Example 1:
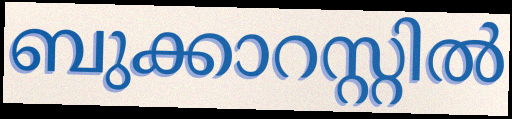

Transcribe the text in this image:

ബുക്കാറസ്റ്റിൽ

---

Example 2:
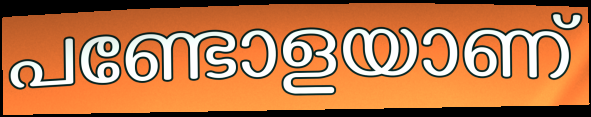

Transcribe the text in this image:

പണ്ടോളയാണ്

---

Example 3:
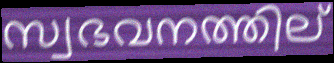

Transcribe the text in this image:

സ്വഭവനത്തില്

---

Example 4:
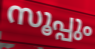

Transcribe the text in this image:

സൂപ്പും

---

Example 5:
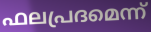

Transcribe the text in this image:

ഫലപ്രദമെന്ന്